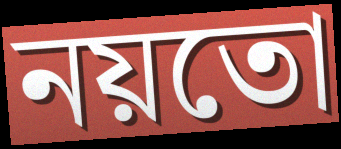
নয়তো